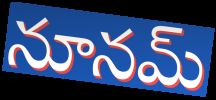
నూనమ్